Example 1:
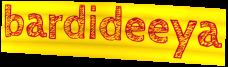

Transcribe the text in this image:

bardideeya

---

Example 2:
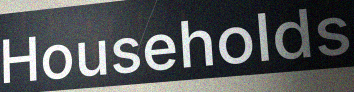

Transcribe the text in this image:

Households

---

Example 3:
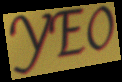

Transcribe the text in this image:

YEO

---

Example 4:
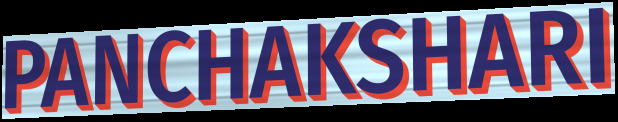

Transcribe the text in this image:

PANCHAKSHARI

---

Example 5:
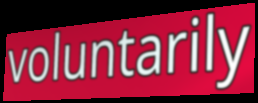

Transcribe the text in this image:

voluntarily